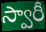
స్వారీ